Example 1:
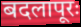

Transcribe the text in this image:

बदलापूरः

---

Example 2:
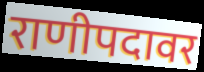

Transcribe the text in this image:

राणीपदावर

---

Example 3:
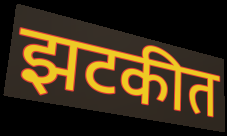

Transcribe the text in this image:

झटकीत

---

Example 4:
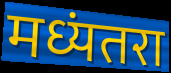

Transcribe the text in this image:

मध्यंतरा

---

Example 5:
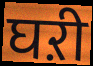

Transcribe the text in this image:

घऱी